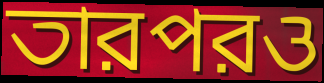
তারপরও